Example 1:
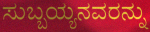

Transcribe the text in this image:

ಸುಬ್ಬಯ್ಯನವರನ್ನು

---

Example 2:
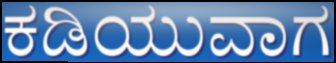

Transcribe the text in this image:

ಕಡಿಯುವಾಗ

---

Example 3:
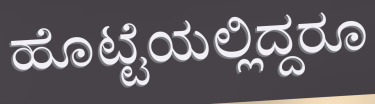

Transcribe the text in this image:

ಹೊಟ್ಟೆಯಲ್ಲಿದ್ದರೂ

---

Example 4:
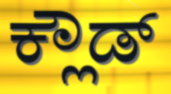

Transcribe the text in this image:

ಕ್ಲೌಡ್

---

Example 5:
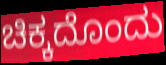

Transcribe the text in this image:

ಚಿಕ್ಕದೊಂದು